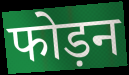
फोड़न